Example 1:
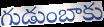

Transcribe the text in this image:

గుడుంబాకు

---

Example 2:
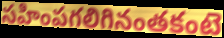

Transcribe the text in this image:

సహింపగలిగినంతకంటె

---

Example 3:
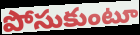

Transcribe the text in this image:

పోసుకుంటూ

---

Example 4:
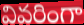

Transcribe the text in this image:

వివరింగా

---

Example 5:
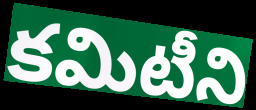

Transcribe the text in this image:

కమిటీని